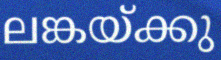
ലങ്കയ്ക്കു